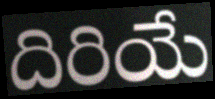
దిరియే